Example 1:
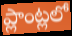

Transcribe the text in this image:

ప్లాంట్లలో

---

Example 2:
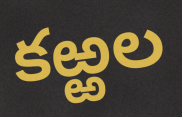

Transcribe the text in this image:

కఱ్ఱల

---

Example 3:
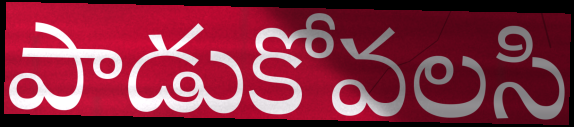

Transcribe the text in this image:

పాడుకోవలసి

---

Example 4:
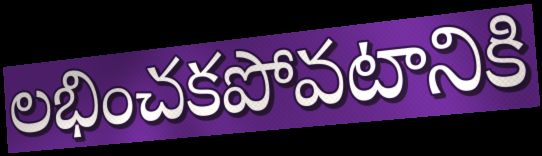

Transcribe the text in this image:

లభించకపోవటానికి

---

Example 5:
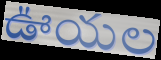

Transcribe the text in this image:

ఊయల